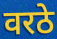
वरठे